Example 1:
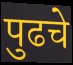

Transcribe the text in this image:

पुढचे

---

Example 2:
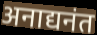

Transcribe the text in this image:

अनाद्यनंत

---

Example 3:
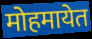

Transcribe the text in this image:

मोहमायेत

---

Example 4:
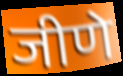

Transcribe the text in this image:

जीणे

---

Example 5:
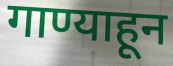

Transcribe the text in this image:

गाण्याहून